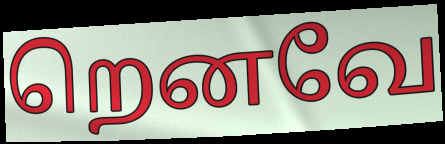
றெனவே